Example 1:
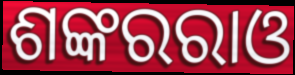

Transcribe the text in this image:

ଶଙ୍କରରାଓ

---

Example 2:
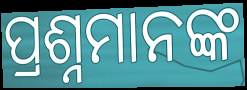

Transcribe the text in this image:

ପ୍ରଶ୍ନମାନଙ୍କ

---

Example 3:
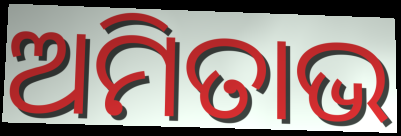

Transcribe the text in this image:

ଅମିତାଭ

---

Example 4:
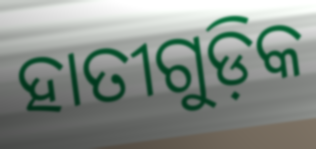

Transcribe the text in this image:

ହାତୀଗୁଡ଼ିକ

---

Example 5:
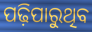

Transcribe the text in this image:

ପଢ଼ିପାରୁଥିବ